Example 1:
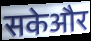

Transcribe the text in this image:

सकेऔर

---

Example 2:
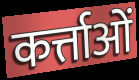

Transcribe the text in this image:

कर्त्ताओं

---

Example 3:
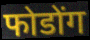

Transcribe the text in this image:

फोडोंग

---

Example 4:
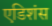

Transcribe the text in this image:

एडिशंस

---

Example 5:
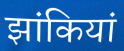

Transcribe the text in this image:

झांकियां